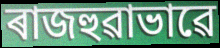
ৰাজহুৱাভাৱে